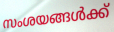
സംശയങ്ങൾക്ക്